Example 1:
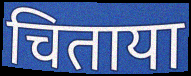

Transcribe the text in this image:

चिताया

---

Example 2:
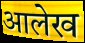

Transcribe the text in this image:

आलेख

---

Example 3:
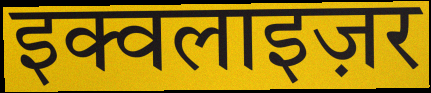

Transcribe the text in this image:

इक्वलाइज़र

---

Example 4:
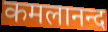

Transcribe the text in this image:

कमलानन्द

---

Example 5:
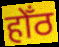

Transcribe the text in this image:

होँठ